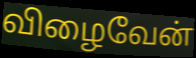
விழைவேன்